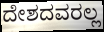
ದೇಶದವರಲ್ಲ